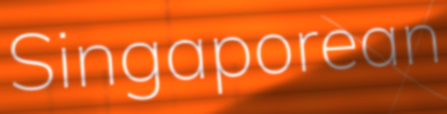
Singaporean